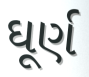
ઘૂર્ણ